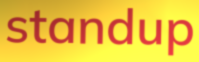
standup